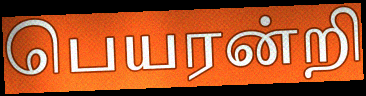
பெயரன்றி